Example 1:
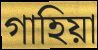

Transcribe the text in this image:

গাহিয়া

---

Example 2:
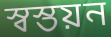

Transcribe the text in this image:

স্বস্তয়ন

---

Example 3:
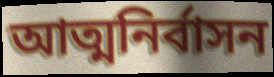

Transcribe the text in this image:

আত্মনির্বাসন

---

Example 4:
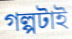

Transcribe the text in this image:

গল্পটাই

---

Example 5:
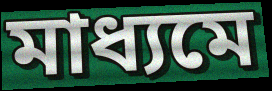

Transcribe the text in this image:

মাধ্যমে